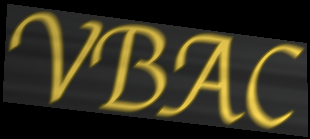
VBAC